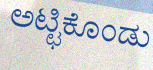
ಅಟ್ಟಿಕೊಂಡು